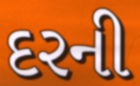
દરની